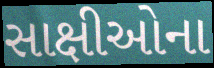
સાક્ષીઓના